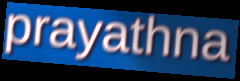
prayathna